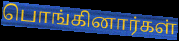
பொங்கினார்கள்